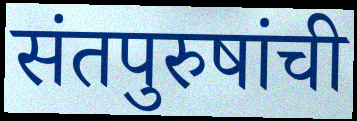
संतपुरुषांची